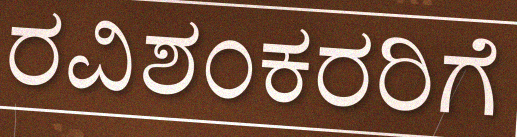
ರವಿಶಂಕರರಿಗೆ